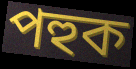
পহুক